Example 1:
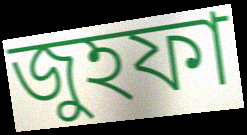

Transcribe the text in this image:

জুহফা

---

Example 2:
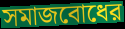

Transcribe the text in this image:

সমাজবোধের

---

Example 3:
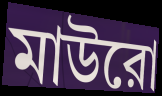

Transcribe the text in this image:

মাউরো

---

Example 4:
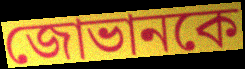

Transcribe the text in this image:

জোভানকে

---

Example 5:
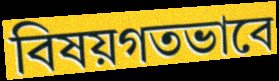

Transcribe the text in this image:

বিষয়গতভাবে